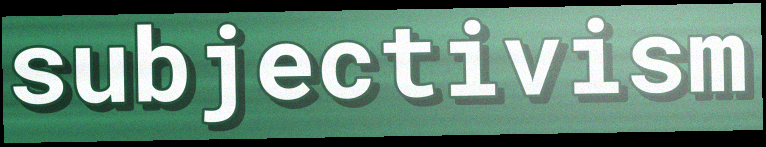
subjectivism